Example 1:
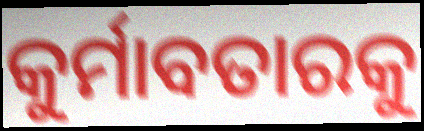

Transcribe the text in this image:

କୁର୍ମାବତାରକୁ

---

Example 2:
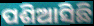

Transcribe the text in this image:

ପଶିଆସିଛି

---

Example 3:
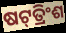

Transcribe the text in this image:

ଷଟ୍‌ତ୍ରିଂଶ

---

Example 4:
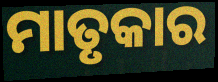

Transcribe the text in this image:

ମାତୃକାର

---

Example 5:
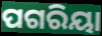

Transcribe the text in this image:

ପଗରିୟା